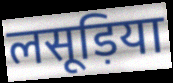
लसूड़िया